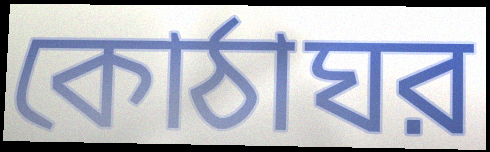
কোঠাঘর